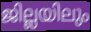
ജില്ലയിലും